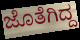
ಜೊತೆಗಿದ್ದ